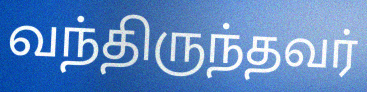
வந்திருந்தவர்